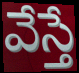
వేస్తే